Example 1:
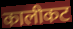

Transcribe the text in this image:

कालीकट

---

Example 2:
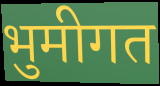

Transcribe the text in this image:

भुमीगत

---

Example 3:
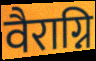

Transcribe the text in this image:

वैराग्नि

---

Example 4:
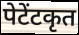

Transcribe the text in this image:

पेटेंटकृत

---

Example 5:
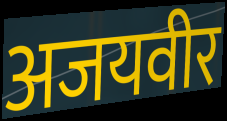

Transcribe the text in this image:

अजयवीर